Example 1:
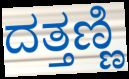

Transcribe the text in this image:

ದತ್ತಣ್ಣಿ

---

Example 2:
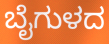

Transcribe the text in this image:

ಬೈಗುಳದ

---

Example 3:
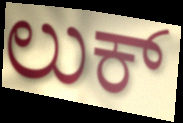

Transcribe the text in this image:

ಲುಕ್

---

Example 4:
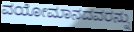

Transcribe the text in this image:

ವಯೋಮಾನದವರನ್ನು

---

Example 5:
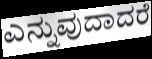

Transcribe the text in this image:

ಎನ್ನುವುದಾದರೆ